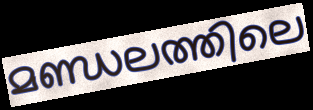
മണ്ഡലത്തിലെ